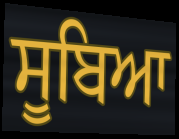
ਸੂਬਿਆ